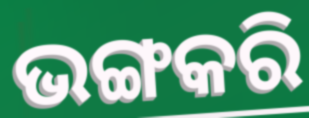
ଭଙ୍ଗକରି